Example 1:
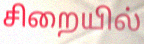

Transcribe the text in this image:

சிறையில்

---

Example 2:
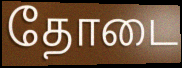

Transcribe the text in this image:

தோடை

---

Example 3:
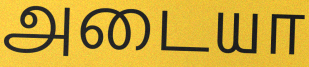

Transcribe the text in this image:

அடையா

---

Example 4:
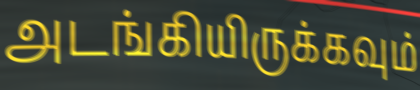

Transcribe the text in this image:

அடங்கியிருக்கவும்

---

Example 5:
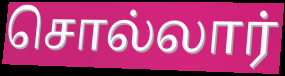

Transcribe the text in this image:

சொல்லார்